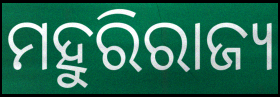
ମହୁରିରାଜ୍ୟ